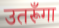
उतरूँगा